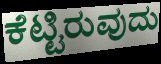
ಕೆಟ್ಟಿರುವುದು